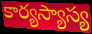
కార్యస్యాస్య